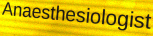
Anaesthesiologist